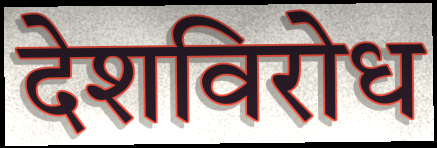
देशविरोध